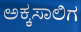
ಅಕ್ಕಸಾಲಿಗ